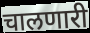
चालणारी